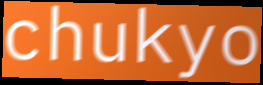
chukyo